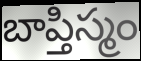
బాప్తిస్మం